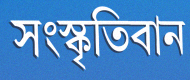
সংস্কৃতিবান